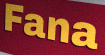
Fana